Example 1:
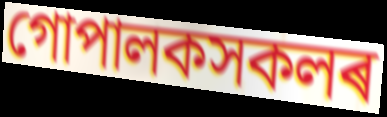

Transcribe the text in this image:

গোপালকসকলৰ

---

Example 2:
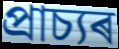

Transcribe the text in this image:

প্ৰাচ্যৰ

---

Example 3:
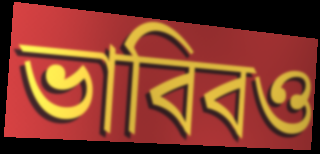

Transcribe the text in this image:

ভাবিবও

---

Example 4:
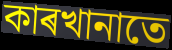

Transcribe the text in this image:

কাৰখানাতে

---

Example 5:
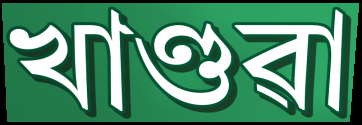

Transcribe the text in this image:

খাণ্ডৱা